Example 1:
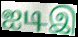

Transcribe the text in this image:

ஐடிஇ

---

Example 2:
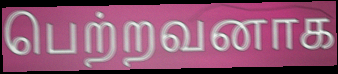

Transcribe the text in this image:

பெற்றவனாக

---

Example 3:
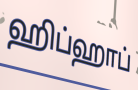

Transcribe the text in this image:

ஹிப்ஹாப்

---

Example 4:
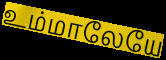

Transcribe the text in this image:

உம்மாலேயே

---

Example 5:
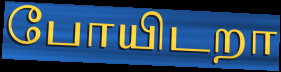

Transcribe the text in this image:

போயிடறா